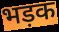
भड़क